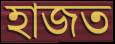
হাজত